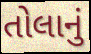
તોલાનું